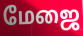
மேஜை